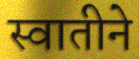
स्वातीने